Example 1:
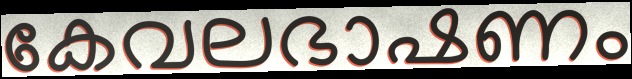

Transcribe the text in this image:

കേവലഭാഷണം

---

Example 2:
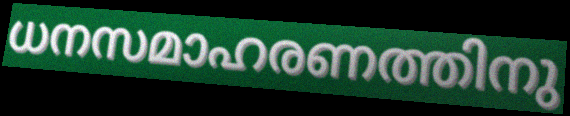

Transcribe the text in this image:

ധനസമാഹരണത്തിനു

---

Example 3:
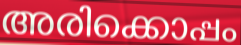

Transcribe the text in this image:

അരിക്കൊപ്പം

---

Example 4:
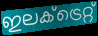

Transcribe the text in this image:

ഇലക്ട്രെറ്റ്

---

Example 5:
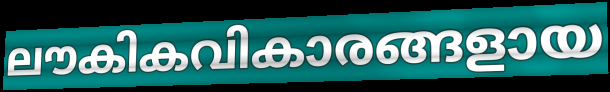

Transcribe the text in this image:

ലൗകികവികാരങ്ങളായ